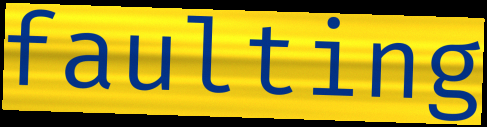
faulting